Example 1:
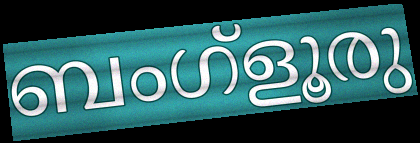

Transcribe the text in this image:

ബംഗ്ളൂരു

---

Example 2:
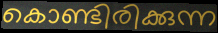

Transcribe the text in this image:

കൊണ്ടിരിക്കുന്ന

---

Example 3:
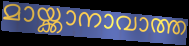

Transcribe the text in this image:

മായ്ക്കാനാവാത്ത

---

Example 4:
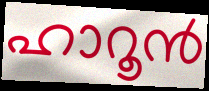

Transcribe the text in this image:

ഹാറൂൻ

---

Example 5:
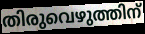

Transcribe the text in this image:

തിരുവെഴുത്തിന്